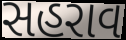
સહરાવ